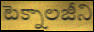
టెక్నాలజీని